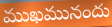
ముఖమునందు